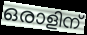
ഒരാളിന്